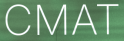
CMAT